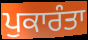
ਪੁਕਾਰੰਤਾ